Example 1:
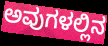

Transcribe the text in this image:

ಅವುಗಳಲ್ಲಿನ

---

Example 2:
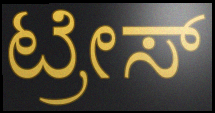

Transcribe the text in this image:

ಟ್ರೇಸ್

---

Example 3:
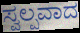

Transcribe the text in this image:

ಸ್ವಲ್ಪವಾದ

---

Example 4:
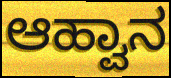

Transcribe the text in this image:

ಆಹ್ವಾನ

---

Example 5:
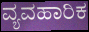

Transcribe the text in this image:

ವ್ಯವಹಾರಿಕ